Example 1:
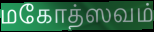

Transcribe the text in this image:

மகோத்ஸவம்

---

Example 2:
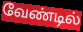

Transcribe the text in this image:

வேண்டில்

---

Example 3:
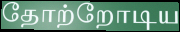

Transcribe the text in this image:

தோற்றோடிய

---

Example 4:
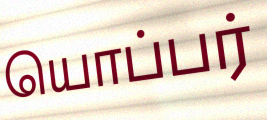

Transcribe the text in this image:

யொப்பர்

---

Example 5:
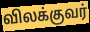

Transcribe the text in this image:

விலக்குவர்